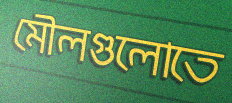
মৌলগুলোতে